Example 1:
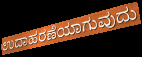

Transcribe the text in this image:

ಉದಾಹರಣೆಯಾಗುವುದು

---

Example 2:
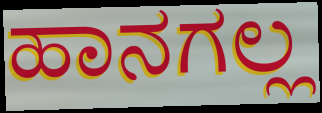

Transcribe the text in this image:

ಹಾನಗಲ್ಲ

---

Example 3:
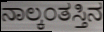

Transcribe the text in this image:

ನಾಲ್ಕಂತಸ್ತಿನ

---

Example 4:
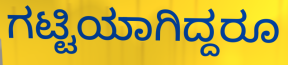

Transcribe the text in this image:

ಗಟ್ಟಿಯಾಗಿದ್ದರೂ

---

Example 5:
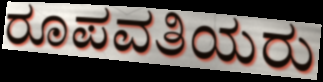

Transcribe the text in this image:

ರೂಪವತಿಯರು